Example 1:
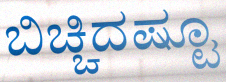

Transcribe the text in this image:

ಬಿಚ್ಚಿದಷ್ಟೂ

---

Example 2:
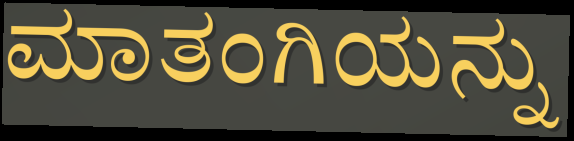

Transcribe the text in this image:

ಮಾತಂಗಿಯನ್ನು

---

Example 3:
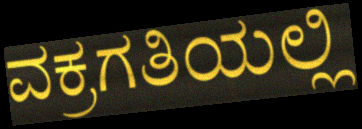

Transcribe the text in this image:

ವಕ್ರಗತಿಯಲ್ಲಿ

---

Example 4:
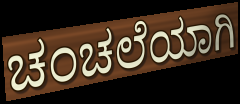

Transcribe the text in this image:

ಚಂಚಲೆಯಾಗಿ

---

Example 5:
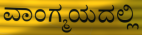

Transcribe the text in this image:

ವಾಂಗ್ಮಯದಲ್ಲಿ